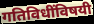
गतिविधींविषयी